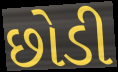
છોડી